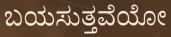
ಬಯಸುತ್ತವೆಯೋ